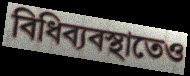
বিধিব্যবস্থাতেও